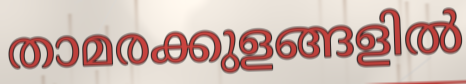
താമരക്കുളങ്ങളിൽ